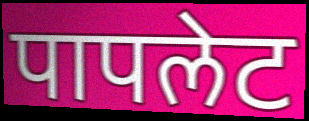
पापलेट